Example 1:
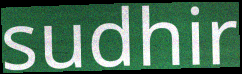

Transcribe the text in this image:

sudhir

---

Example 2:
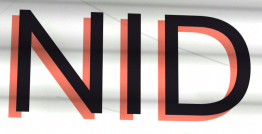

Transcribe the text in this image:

NID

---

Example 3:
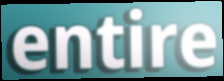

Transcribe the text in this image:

entire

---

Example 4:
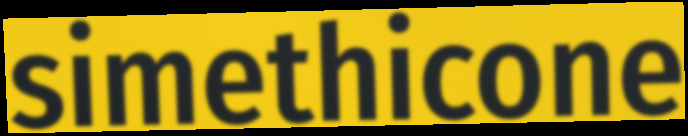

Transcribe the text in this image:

simethicone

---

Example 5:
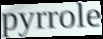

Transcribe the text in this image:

pyrrole